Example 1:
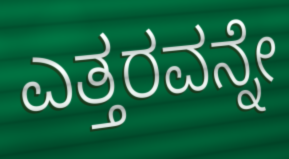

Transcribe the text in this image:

ಎತ್ತರವನ್ನೇ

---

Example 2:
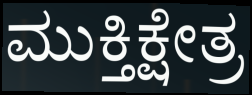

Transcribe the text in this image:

ಮುಕ್ತಿಕ್ಷೇತ್ರ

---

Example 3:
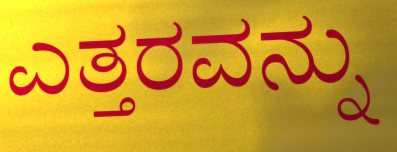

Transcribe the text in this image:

ಎತ್ತರವನ್ನು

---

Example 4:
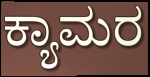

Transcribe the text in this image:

ಕ್ಯಾಮರ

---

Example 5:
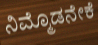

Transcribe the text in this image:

ನಿಮ್ಮೊಡನೇಕೆ